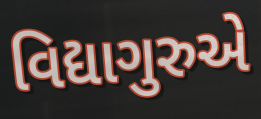
વિદ્યાગુરુએ